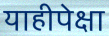
याहीपेक्षा